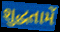
શુદ્ધતામેં